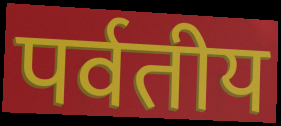
पर्वतीय